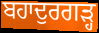
ਬਹਾਦੁਰਗੜ੍ਹ